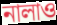
নালাও